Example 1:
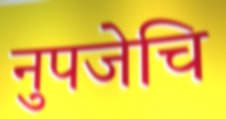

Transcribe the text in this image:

नुपजेचि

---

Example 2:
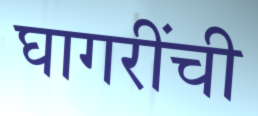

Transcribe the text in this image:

घागरींची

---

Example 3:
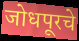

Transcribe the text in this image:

जोधपूरचे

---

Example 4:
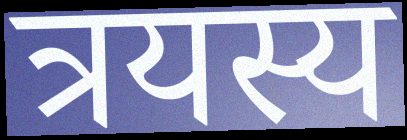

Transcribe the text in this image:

त्रयस्य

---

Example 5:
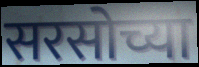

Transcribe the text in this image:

सरसोच्या